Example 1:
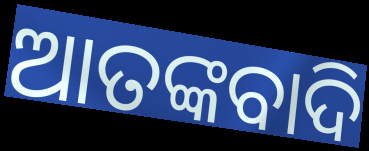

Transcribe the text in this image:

ଆତଙ୍କବାଦି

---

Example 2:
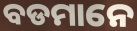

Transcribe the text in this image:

ବଡମାନେ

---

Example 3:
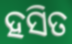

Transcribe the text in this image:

ହସିତ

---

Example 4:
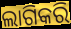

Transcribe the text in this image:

ଲାଗିକରି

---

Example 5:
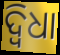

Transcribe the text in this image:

ଦ୍ୱିଧା